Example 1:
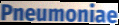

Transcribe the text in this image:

Pneumoniae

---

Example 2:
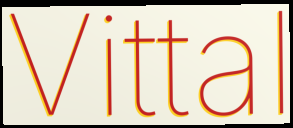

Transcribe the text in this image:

Vittal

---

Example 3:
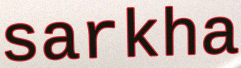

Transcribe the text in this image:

sarkha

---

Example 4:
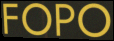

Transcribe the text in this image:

FOPO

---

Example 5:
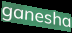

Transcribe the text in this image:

ganesha